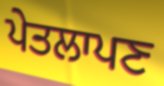
ਪੇਤਲਾਪਣ